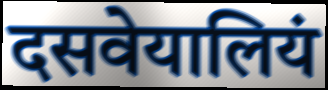
दसवेयालियं